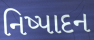
નિષ્પાદન